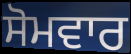
ਸੋਮਵਾਰ